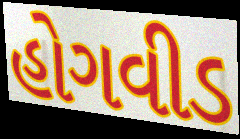
હોગવીડ